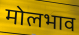
मोलभाव